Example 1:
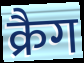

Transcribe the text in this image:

क्रैग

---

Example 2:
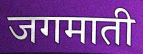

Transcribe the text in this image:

जगमाती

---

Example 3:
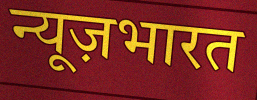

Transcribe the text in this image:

न्यूज़भारत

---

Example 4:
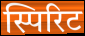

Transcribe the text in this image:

स्पिरिट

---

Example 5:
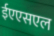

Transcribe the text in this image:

ईएएसएल